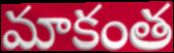
మాకంత